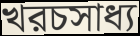
খরচসাধ্য